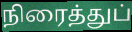
நிரைத்துப்